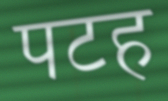
पटह